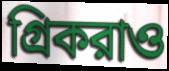
গ্রিকরাও